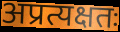
अप्रत्यक्षतः